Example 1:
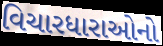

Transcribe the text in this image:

વિચારધારાઓનો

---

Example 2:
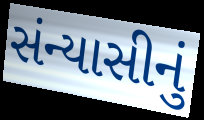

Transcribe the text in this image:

સંન્યાસીનું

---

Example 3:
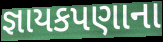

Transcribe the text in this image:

જ્ઞાયકપણાના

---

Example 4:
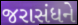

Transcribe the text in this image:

જરાસંધને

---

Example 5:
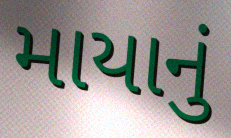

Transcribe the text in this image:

માયાનું